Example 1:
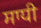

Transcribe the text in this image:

ਸਾਧੀ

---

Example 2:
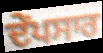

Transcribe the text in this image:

ਦੇਂਪਸਾਰ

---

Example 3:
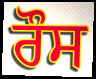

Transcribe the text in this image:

ਰੌਸ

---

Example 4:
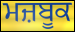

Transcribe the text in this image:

ਮਜ਼ਬੂਕ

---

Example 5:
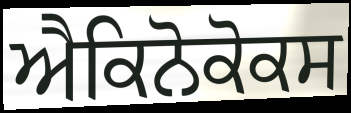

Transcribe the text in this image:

ਐਕਿਨੋਕੋਕਸ